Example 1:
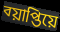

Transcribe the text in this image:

ব্য়াপ্তিয়ে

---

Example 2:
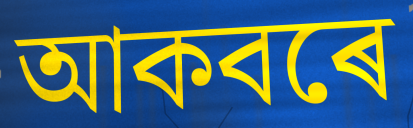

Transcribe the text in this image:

আকবৰে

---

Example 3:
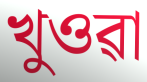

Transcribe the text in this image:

খুওৱা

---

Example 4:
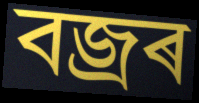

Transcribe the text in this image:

বজ্ৰৰ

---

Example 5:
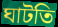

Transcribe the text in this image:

ঘাটতি